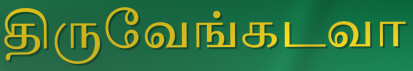
திருவேங்கடவா